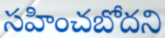
సహించబోదని